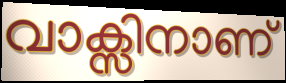
വാക്സിനാണ്